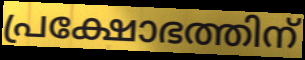
പ്രക്ഷോഭത്തിന്